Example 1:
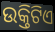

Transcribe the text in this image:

ଉକ୍ତିଟିଏ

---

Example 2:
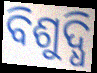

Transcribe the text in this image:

ବିଶୁଦ୍ଧି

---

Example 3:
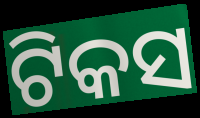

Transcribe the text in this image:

ଟିକସ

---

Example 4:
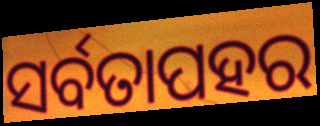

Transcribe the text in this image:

ସର୍ବତାପହର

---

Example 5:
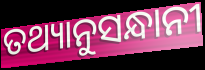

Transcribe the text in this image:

ତଥ୍ୟାନୁସନ୍ଧାନୀ